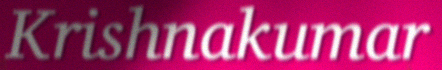
Krishnakumar